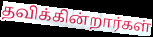
தவிக்கின்றார்கள்